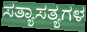
ಸತ್ಯಾಸತ್ಯಗಳ